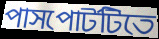
পাসপোর্টটিতে